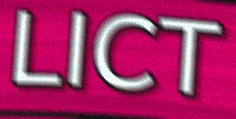
LICT